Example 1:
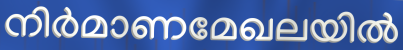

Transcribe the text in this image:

നിർമാണമേഖലയിൽ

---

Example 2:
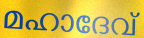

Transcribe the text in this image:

മഹാദേവ്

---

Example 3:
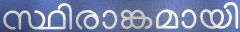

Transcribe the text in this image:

സ്ഥിരാങ്കമായി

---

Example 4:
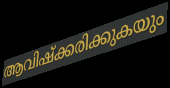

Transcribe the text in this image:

ആവിഷ്ക്കരിക്കുകയും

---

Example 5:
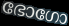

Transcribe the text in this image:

ഭോഗോ